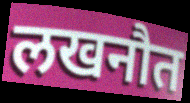
लखनौत